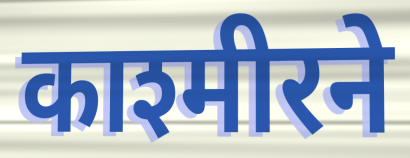
काश्मीरने